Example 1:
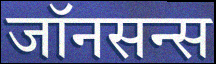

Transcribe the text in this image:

जॉनसन्स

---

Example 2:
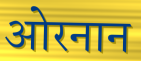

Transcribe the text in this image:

ओरनान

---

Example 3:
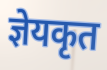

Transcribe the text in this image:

ज्ञेयकृत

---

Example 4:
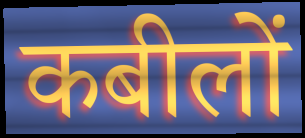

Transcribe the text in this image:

कबीलों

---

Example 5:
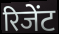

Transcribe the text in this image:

रिजेंट